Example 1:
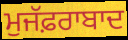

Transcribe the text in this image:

ਮੁਜੱਫ਼ਰਾਬਾਦ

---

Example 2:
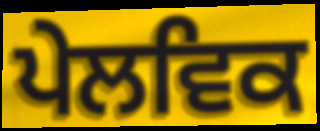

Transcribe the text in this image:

ਪੇਲਵਿਕ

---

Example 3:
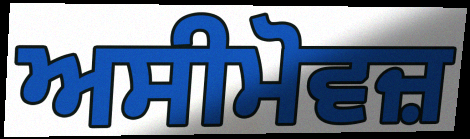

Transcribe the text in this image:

ਅਸੀਮੋਵਜ਼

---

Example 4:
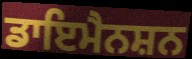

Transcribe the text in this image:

ਡਾਇਮੈਨਸ਼ਨ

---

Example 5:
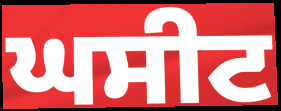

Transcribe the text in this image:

ਘਸੀਟ